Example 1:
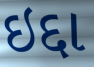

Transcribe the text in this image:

ઇદ્દા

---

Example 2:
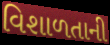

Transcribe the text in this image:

વિશાળતાની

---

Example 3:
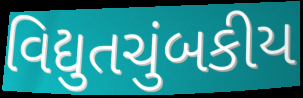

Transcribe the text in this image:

વિદ્યુતચુંબકીય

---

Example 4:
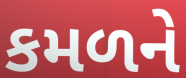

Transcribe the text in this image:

કમળને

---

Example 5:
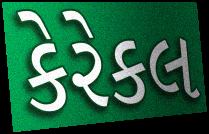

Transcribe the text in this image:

કેરેકલ